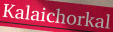
Kalaichorkal